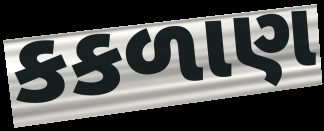
કકળાણ